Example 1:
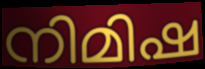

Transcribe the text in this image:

നിമിഷ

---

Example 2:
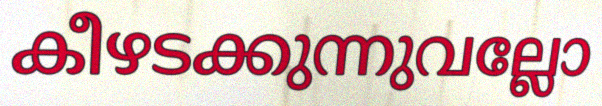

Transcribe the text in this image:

കീഴടക്കുന്നുവല്ലോ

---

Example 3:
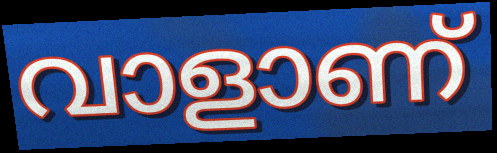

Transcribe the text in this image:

വാളാണ്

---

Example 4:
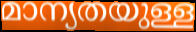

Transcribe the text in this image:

മാന്യതയുള്ള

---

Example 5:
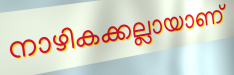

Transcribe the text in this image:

നാഴികക്കല്ലായാണ്